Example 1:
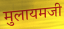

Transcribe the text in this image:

मुलायमजी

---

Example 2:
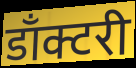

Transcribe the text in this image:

डाँक्टरी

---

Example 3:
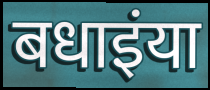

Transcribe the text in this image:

बधाइंया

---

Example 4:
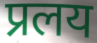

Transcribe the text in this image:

प्रलय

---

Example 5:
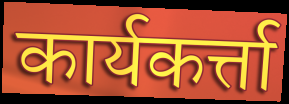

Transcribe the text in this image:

कार्यकर्त्ता